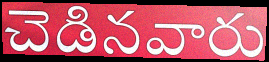
చెడినవారు